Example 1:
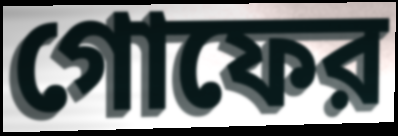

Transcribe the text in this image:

গোফের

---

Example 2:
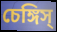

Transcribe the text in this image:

চেঙ্গিস্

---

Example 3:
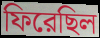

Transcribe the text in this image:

ফিরেছিল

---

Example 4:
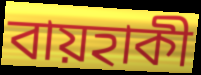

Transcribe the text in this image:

বায়হাকী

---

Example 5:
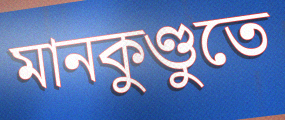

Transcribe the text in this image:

মানকুণ্ডুতে